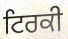
ਟਿਰਕੀ